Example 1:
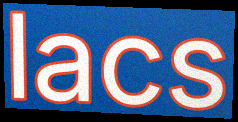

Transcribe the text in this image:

lacs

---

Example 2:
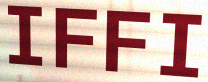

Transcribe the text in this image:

IFFI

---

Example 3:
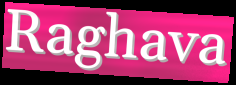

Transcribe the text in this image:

Raghava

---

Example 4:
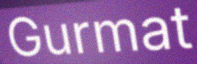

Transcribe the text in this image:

Gurmat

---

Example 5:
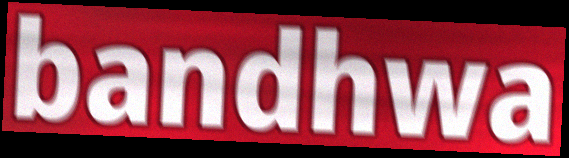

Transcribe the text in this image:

bandhwa